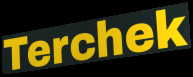
Terchek